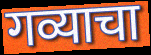
गव्याचा